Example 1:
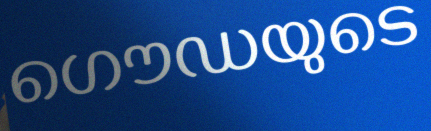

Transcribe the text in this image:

ഗൌഡയുടെ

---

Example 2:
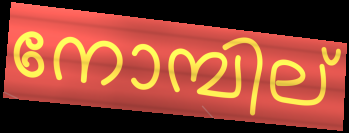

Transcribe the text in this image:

നോമ്പില്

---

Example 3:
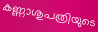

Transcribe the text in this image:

കണ്ണാശുപത്രിയുടെ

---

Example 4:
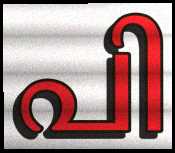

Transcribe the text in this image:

പി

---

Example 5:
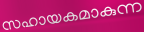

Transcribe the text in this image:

സഹായകമാകുന്ന